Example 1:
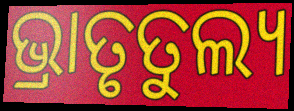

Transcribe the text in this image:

ଭ୍ରାତୃତୁଲ୍ୟ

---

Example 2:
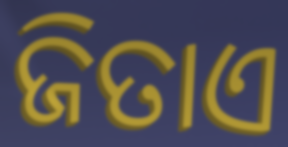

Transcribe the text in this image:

ଜିତାଏ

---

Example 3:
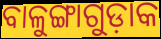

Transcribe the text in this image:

ବାଳୁଙ୍ଗାଗୁଡ଼ାକ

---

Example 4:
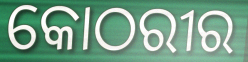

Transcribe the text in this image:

କୋଠରୀର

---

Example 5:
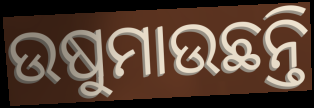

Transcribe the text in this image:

ଉଷୁମାଉଛନ୍ତି